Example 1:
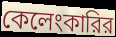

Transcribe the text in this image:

কেলেংকারির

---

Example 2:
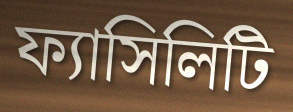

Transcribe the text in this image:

ফ্যাসিলিটি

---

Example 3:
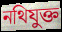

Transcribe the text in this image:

নথিযুক্ত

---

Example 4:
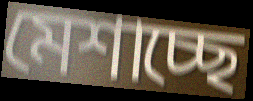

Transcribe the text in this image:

মেশাচ্ছে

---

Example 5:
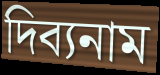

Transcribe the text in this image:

দিব্যনাম